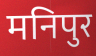
मनिपुर